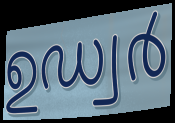
ഉഡ്വർ